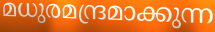
മധുരമന്ദ്രമാക്കുന്ന